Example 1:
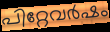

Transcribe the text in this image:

പിറ്റേവർഷം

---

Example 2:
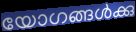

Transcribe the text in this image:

യോഗങ്ങൾക്കു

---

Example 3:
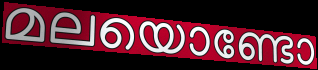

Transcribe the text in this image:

മലയൊണ്ടോ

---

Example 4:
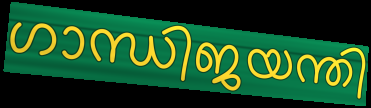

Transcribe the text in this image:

ഗാന്ധിജയന്തി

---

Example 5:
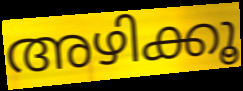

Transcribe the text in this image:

അഴിക്കൂ